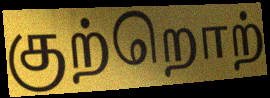
குற்றொற்